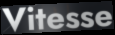
Vitesse